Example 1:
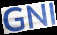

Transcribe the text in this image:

GNI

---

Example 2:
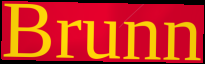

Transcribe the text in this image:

Brunn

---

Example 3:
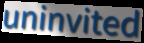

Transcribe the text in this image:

uninvited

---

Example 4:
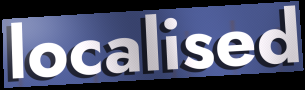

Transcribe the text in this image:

localised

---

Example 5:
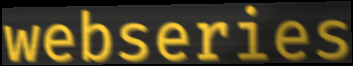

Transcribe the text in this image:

webseries